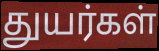
துயர்கள்